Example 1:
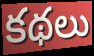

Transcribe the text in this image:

కథలు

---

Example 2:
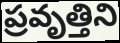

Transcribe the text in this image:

ప్రవృత్తిని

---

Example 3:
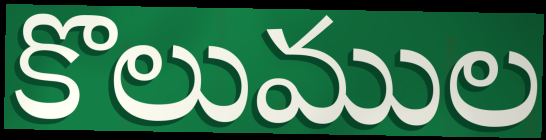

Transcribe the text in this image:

కొలుముల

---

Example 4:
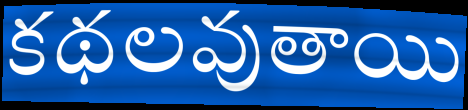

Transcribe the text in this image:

కథలవుతాయి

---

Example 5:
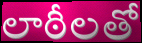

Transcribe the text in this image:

లాఠీలతో